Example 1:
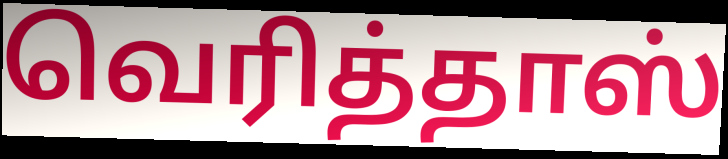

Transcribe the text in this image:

வெரித்தாஸ்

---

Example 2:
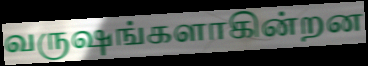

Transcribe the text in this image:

வருஷங்களாகின்றன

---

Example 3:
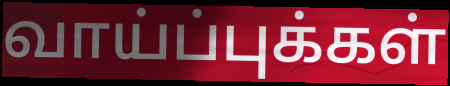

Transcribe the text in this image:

வாய்ப்புக்கள்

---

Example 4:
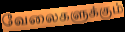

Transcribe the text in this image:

வேலைகளுக்கும்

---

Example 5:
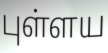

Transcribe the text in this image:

புள்ளய